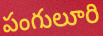
పంగులూరి